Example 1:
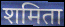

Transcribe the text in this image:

शमिता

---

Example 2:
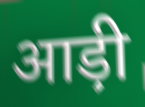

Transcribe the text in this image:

आड़ी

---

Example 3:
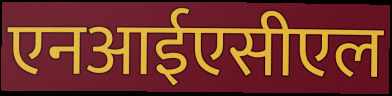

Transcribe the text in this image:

एनआईएसीएल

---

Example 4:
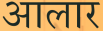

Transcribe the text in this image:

आलार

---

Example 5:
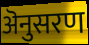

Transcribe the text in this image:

ऄनुसरण